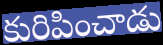
కురిపించాడు